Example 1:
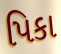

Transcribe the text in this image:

પિકા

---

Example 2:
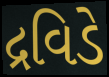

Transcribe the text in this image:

દ્રવિડે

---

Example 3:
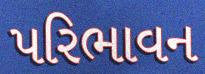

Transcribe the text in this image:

પરિભાવન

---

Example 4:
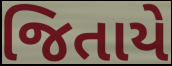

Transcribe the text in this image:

જિતાયે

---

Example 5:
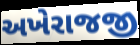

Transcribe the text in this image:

અખેરાજજી